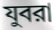
যুবরা